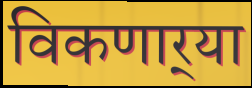
विकणार्या